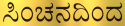
ಸಿಂಚನದಿಂದ